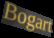
Bogart